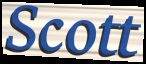
Scott